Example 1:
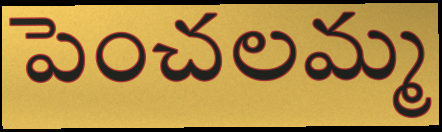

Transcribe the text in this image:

పెంచలమ్మ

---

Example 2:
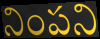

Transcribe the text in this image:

నింపని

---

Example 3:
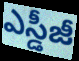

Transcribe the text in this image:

ఎస్డీజీ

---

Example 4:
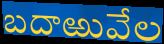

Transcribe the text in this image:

బదాఱువేల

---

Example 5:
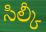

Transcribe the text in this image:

సిల్కీ